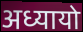
अध्यायो